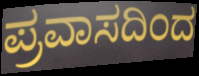
ಪ್ರವಾಸದಿಂದ